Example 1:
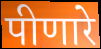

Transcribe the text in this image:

पीणारे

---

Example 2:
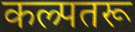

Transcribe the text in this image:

कल्पतरू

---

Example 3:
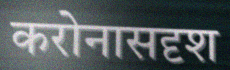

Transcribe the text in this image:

करोनासदृश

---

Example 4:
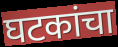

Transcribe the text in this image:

घटकांचा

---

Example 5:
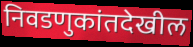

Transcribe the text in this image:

निवडणुकांतदेखील